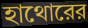
হাথোরের